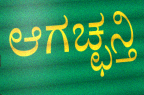
ಆಗಚ್ಛನ್ತಿ